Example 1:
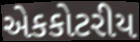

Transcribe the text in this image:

એકકોટરીય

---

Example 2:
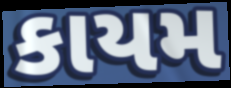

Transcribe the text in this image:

કાયમ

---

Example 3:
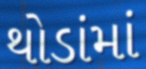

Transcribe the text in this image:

થોડાંમાં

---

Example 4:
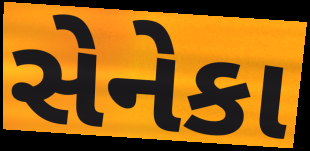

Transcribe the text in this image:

સેનેકા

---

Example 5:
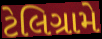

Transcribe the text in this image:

ટેલિગ્રામે